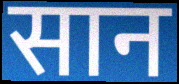
सान